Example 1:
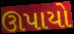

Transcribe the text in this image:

ઊપાયો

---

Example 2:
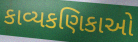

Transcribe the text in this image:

કાવ્યકણિકાઓ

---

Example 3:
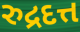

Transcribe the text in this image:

રુદ્રદત્ત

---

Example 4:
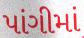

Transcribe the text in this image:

પાંગીમાં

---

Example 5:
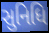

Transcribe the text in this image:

સુનિધિ